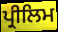
ਪ੍ਰੀਲਿਮ